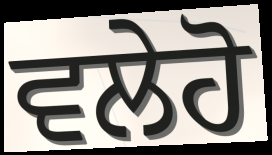
ਵਲੇਹੋ